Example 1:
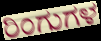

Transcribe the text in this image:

ರಿಂಗುಗಳ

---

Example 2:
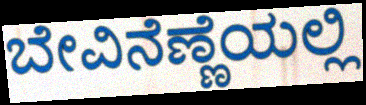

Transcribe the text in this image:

ಬೇವಿನೆಣ್ಣೆಯಲ್ಲಿ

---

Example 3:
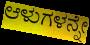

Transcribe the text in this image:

ಆಳುಗಳನ್ನೇ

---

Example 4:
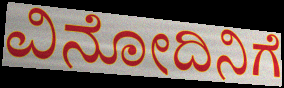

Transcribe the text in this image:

ವಿನೋದಿನಿಗೆ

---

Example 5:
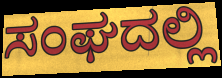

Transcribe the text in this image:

ಸಂಘದಲ್ಲಿ